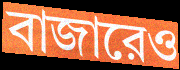
বাজারেও